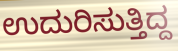
ಉದುರಿಸುತ್ತಿದ್ದ